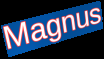
Magnus